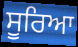
ਸੂਰਿਆ